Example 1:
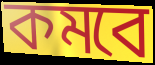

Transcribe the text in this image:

কমবে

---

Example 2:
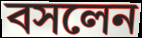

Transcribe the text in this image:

বসলেন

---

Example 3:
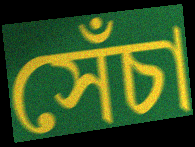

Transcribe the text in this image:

সেঁচা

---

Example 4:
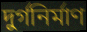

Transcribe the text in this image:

দুর্গনির্মাণ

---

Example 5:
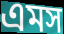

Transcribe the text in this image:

এমস